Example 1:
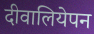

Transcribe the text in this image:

दीवालियेपन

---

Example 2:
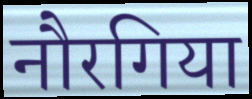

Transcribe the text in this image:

नौरगिया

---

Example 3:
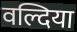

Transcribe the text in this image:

वल्दिया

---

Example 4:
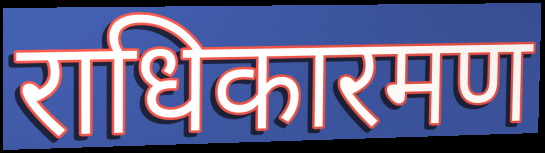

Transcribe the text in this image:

राधिकारमण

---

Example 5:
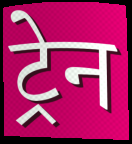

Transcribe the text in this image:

ट्रेन